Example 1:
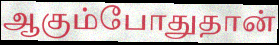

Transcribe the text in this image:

ஆகும்போதுதான்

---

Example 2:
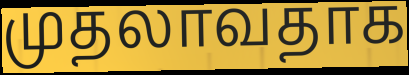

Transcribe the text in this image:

முதலாவதாக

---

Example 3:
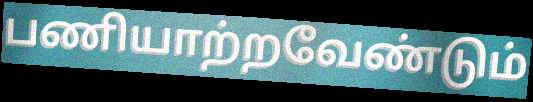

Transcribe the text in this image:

பணியாற்றவேண்டும்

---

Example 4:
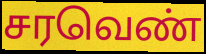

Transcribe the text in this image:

சரவெண்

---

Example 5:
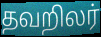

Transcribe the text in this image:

தவறிலர்